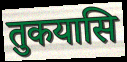
तुकयासि